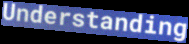
Understanding